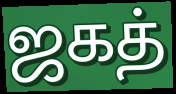
ஜகத்